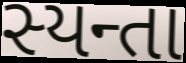
સ્યન્તા